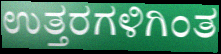
ಉತ್ತರಗಳಿಗಿಂತ